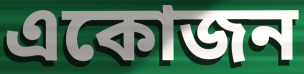
একোজন